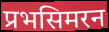
प्रभसिमरन